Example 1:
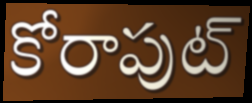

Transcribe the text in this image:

కోరాపుట్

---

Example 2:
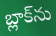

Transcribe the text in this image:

బ్లాక్‌ను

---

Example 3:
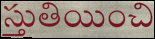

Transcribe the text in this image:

స్తుతియించి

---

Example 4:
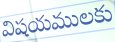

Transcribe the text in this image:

విషయములకు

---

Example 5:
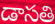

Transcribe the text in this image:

డాసతి